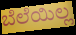
ಬೆಲೆಯಿಲ್ಲ